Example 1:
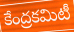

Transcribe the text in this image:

కేంద్రకమిటీ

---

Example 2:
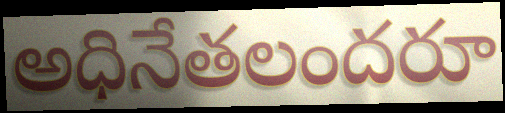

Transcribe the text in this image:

అధినేతలందరూ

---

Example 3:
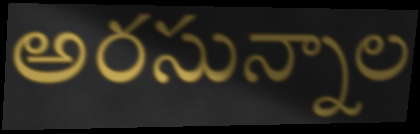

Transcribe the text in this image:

అరసున్నాల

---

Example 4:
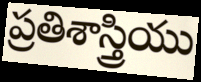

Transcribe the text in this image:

ప్రతిశాస్త్రియు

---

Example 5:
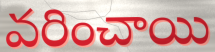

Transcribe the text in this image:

వరించాయి